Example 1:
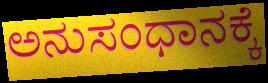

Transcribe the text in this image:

ಅನುಸಂಧಾನಕ್ಕೆ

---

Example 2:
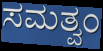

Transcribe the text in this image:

ಸಮತ್ವಂ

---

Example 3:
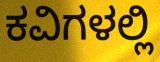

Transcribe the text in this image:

ಕವಿಗಳಲ್ಲಿ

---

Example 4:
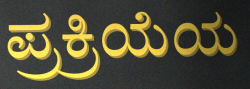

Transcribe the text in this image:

ಪ್ರಕ್ರಿಯೆಯ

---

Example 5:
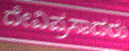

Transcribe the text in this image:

ದೇವಿಪ್ರಸಾದರು